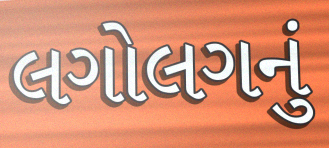
લગોલગનું